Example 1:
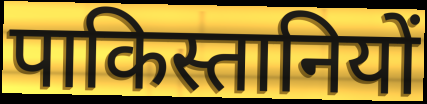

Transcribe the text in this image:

पाकिस्तानियों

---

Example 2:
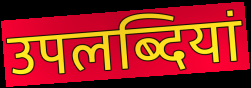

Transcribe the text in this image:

उपलब्दियां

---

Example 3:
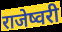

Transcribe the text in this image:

राजेष्वरी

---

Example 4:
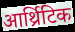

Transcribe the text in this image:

आर्थ्रिटिक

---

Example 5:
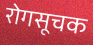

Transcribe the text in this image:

रोगसूचक